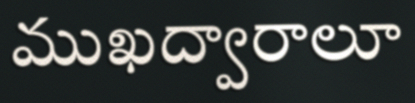
ముఖద్వారాలూ